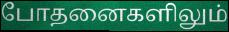
போதனைகளிலும்